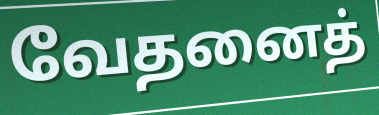
வேதனைத்